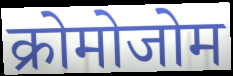
क्रोमोजोम